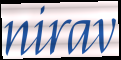
nirav